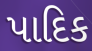
પાદિક